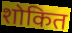
शोकित